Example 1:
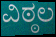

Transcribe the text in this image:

ವಿಠ್ಠಲ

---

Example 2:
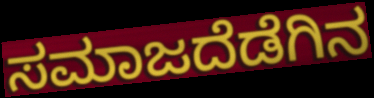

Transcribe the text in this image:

ಸಮಾಜದೆಡೆಗಿನ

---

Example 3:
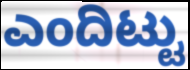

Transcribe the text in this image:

ಎಂದಿಟ್ಟು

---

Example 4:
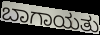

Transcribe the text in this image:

ಬಾಗಾಯತು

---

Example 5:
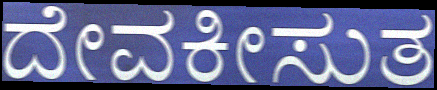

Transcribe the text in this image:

ದೇವಕೀಸುತ